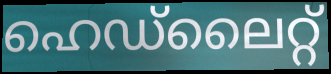
ഹെഡ്ലൈറ്റ്